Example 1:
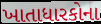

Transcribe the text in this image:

ખાતાધારકોના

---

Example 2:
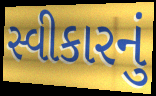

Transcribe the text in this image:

સ્વીકારનું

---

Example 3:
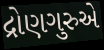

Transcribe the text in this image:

દ્રોણગુરુએ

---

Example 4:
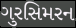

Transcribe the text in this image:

ગુરસિમરન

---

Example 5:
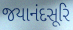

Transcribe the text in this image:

જયાનંદસૂરિ